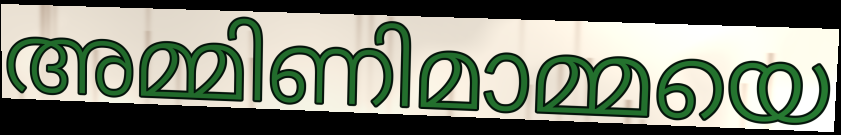
അമ്മിണിമാമ്മയെ